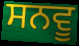
ਸਨਵੂ